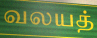
வலயத்